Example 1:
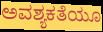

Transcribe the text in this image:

ಅವಶ್ಯಕತೆಯೂ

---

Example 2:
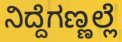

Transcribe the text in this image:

ನಿದ್ದೆಗಣ್ಣಲ್ಲೆ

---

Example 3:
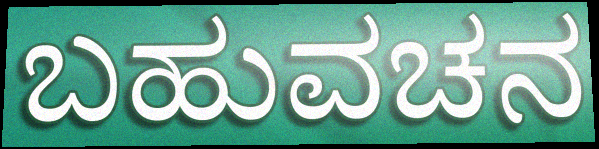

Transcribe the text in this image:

ಬಹುವಚನ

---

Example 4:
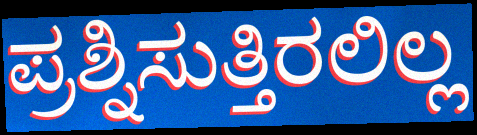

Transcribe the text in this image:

ಪ್ರಶ್ನಿಸುತ್ತಿರಲಿಲ್ಲ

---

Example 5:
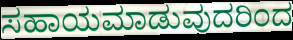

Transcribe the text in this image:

ಸಹಾಯಮಾಡುವುದರಿಂದ